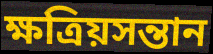
ক্ষত্রিয়সন্তান